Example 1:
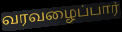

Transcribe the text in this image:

வரவழைப்பார்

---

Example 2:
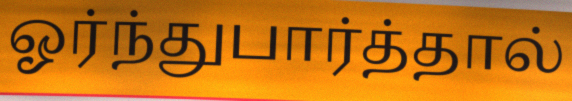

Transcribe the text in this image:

ஓர்ந்துபார்த்தால்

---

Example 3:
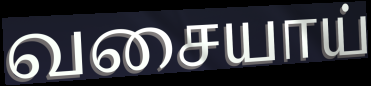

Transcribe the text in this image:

வசையாய்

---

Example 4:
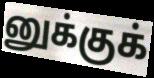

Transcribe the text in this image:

னுக்குக்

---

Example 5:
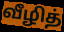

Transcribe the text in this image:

வீழித்